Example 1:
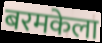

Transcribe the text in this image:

बरमकेला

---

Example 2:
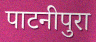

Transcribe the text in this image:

पाटनीपुरा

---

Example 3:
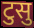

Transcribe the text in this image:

टुसु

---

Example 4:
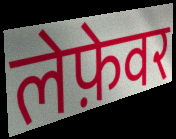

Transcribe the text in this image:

लेफ़ेवर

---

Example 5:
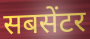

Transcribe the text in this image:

सबसेंटर